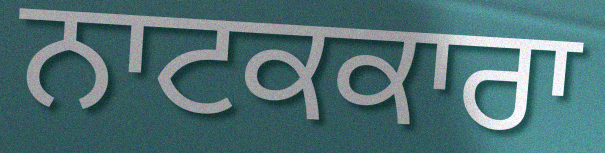
ਨਾਟਕਕਾਰਾ